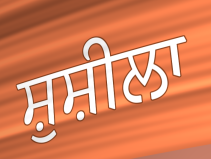
ਸ਼ੁਸ਼ੀਲਾ